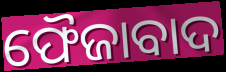
ଫୈଜାବାଦ